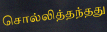
சொல்லித்தந்தது